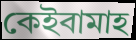
কেইবামাহ